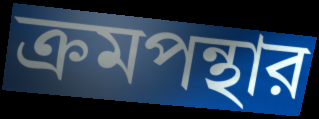
ক্রমপন্থার